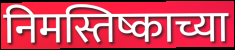
निमस्तिष्काच्या